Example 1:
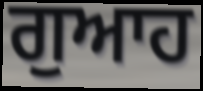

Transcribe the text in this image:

ਗੁਆਹ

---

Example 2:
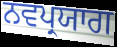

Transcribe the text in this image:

ਨਵਪ੍ਰਯਾਗ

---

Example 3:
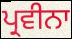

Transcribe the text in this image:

ਪ੍ਰਵੀਨਾ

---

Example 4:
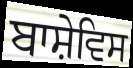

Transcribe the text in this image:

ਬਾਸ਼ੇਵਿਸ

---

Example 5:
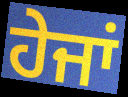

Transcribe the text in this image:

ਹੇਜਾਂ